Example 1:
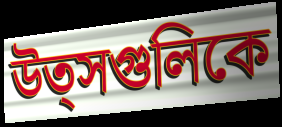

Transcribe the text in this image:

উত্সগুলিকে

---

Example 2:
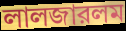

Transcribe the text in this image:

লালজারলম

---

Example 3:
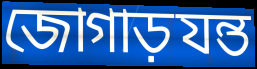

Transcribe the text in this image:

জোগাড়যন্ত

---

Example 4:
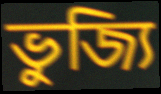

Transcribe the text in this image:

ভুজ্যি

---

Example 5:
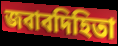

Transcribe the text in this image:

জবাবদিহিতা